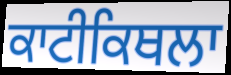
ਕਾਟੀਕਿਥਲਾ